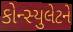
કોન્સ્યુલેટને